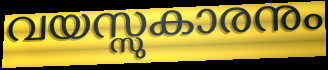
വയസ്സുകാരനും